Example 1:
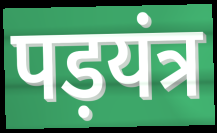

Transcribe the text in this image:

पड़यंत्र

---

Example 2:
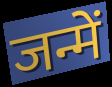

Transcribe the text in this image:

जन्में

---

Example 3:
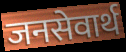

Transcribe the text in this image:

जनसेवार्थ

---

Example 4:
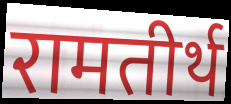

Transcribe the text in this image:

रामतीर्थ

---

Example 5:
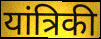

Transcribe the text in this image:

यांत्रिकी